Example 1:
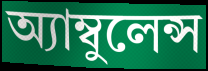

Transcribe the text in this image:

অ্যাম্বুলেন্স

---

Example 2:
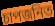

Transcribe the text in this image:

চাপজনিত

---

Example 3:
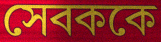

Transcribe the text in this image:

সেবককে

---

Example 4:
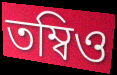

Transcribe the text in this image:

তম্বিও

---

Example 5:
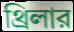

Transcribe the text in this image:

থ্রিলার